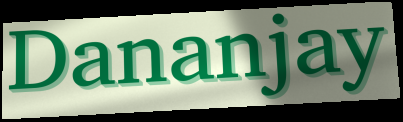
Dananjay